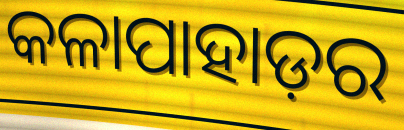
କଳାପାହାଡ଼ର